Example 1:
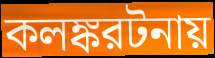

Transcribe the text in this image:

কলঙ্করটনায়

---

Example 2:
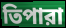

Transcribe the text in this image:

তিপারা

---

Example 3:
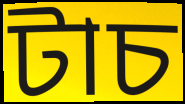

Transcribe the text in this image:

টাচ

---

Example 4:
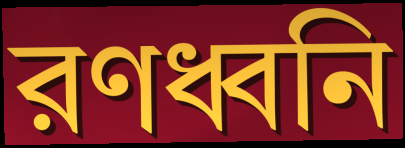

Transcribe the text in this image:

রণধ্বনি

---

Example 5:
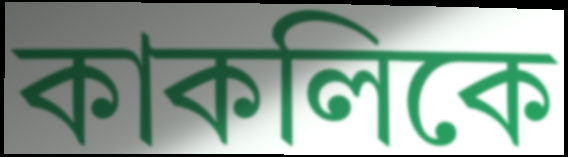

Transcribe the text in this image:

কাকলিকে